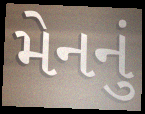
મેનનું